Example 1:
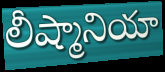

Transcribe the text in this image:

లీష్మానియా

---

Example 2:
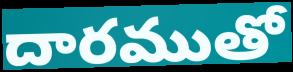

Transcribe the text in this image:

దారముతో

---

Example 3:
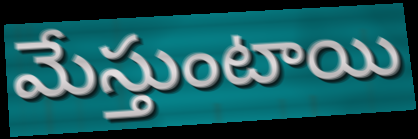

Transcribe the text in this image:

మేస్తుంటాయి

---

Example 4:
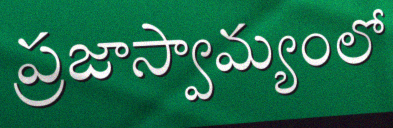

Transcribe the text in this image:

ప్రజాస్వామ్యంలో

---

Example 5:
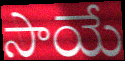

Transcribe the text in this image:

సాయే